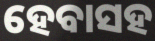
ହେବାସହ